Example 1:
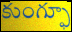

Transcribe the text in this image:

కుంగ్ఫూ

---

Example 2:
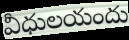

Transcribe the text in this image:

వీధులయందు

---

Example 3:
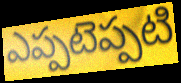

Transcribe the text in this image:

ఎప్పటెప్పటి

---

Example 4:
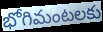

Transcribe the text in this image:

భోగిమంటలకు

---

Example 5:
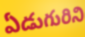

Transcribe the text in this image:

ఏడుగురిని